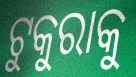
ଟୁକୁରାକୁ